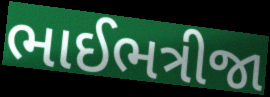
ભાઈભત્રીજા